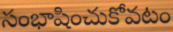
సంభాషించుకోవటం